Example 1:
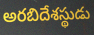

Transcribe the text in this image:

అరబిదేశస్థుడు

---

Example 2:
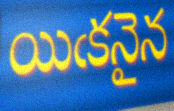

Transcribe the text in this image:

యిఁకనైన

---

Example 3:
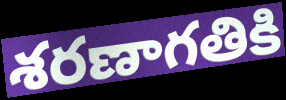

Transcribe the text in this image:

శరణాగతికి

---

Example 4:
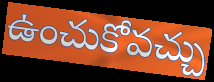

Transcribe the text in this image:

ఉంచుకోవచ్చు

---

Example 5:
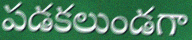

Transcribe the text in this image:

పడకలుండగా